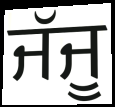
ਜੱਜੂ